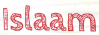
Islaam